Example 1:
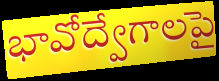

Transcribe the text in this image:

భావోద్వేగాలపై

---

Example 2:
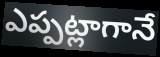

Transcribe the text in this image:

ఎప్పట్లాగానే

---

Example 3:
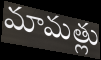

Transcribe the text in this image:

మామత్లు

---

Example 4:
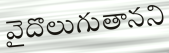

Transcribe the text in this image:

వైదొలుగుతానని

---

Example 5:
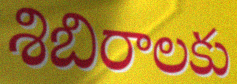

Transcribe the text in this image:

శిబిరాలకు